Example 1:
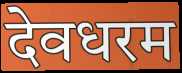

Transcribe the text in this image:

देवधरम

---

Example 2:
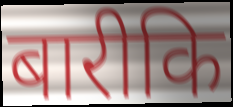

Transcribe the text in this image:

बारीकि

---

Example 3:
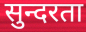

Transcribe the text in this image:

सुन्दरता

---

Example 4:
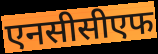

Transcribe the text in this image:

एनसीसीएफ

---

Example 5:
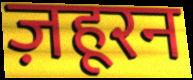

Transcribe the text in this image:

ज़हूरन